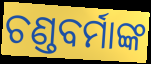
ଚଣ୍ଡବର୍ମାଙ୍କ